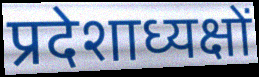
प्रदेशाध्यक्षों